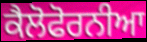
ਕੈਲੋਫੋਰਨੀਆ